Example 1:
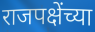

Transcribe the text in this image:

राजपक्षेंच्या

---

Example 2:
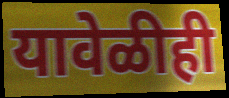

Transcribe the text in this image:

यावेळीही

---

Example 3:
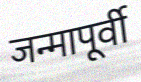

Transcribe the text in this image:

जन्मापूर्वी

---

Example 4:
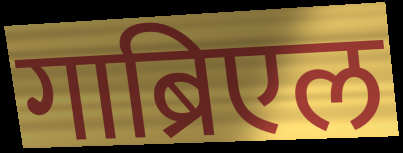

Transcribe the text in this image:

गाब्रिएल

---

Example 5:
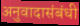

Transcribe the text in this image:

अनुवादासंबंधी